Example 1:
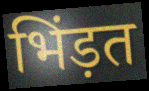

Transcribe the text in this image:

भिंड़त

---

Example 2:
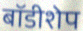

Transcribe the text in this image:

बॉडीशेप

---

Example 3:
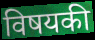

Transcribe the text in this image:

विषयकी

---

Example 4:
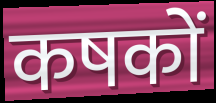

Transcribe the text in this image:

कषकों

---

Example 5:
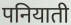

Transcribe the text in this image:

पनियाती